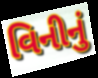
વિનીનું